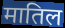
मातिल